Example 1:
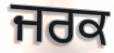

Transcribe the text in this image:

ਜਰਕ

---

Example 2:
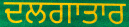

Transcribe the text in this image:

ਦਲਗਾਤਾਰ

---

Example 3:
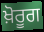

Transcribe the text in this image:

ਖ਼ੋਰੂਗ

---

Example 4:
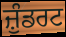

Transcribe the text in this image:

ਜ਼ੁੰਡਰਟ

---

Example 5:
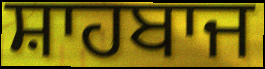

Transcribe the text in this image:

ਸ਼ਾਹਬਾਜ